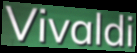
Vivaldi